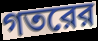
গতরের